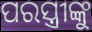
ପରସ୍ତ୍ରୀଙ୍କୁ